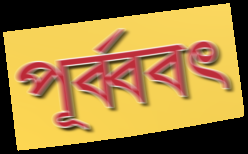
পূর্ব্ববৎ